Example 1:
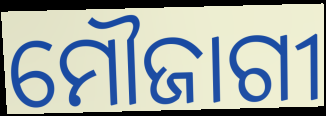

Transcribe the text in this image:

ମୌଜାଗୀ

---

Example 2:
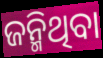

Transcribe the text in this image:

ଜନ୍ମିଥିବା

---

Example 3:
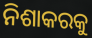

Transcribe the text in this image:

ନିଶାକରକୁ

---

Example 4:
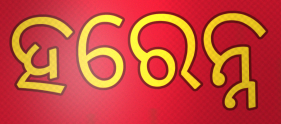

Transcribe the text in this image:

ହରେନ୍ନ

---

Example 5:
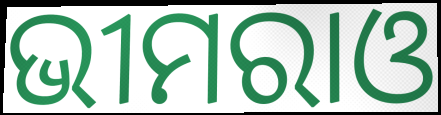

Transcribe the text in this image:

ଭୀମରାଓ